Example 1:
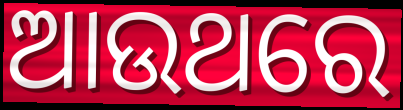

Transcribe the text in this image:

ଆଉଥରେ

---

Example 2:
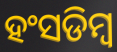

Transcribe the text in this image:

ହଂସଡିମ୍ବ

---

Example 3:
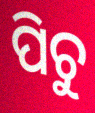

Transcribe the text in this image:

ପିଚୁ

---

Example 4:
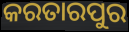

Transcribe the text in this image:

କରତାରପୁର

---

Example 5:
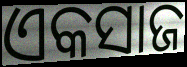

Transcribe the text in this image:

ଏକସାଜ